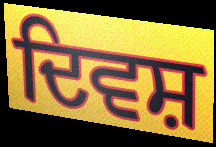
ਦਿਵਸ਼